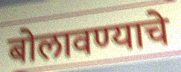
बोलावण्याचे